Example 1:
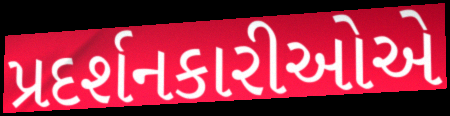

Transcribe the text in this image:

પ્રદર્શનકારીઓએ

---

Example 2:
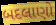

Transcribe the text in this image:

બદલાણો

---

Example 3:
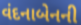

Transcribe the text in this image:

વંદનાબેનની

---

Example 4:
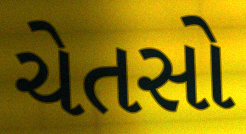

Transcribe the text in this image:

ચેતસો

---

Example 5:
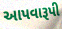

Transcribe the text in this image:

આપવારૂપી